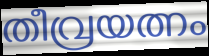
തീവ്രയത്നം